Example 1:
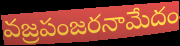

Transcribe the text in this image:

వజ్రపంజరనామేదం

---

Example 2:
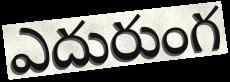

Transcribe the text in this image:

ఎదురుంగ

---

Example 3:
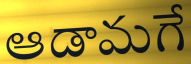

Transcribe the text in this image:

ఆడామగే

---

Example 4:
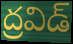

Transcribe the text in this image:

ద్రవిడ్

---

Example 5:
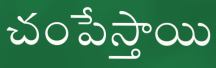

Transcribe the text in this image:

చంపేస్తాయి